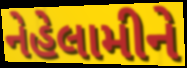
નેહેલામીને